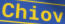
Chiov